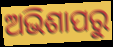
ଅଭିଶାପରୁ